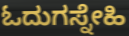
ಓದುಗಸ್ನೇಹಿ